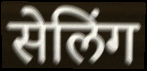
सेलिंग